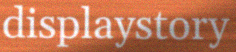
displaystory